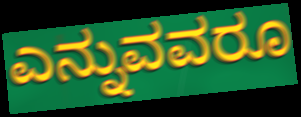
ಎನ್ನುವವರೂ